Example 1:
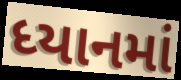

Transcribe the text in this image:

ધ્યાનમાં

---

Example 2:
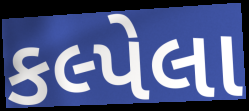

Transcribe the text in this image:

કલ્પેલા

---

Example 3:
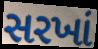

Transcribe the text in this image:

સરખાં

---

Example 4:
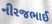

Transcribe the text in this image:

નીરજભાઈ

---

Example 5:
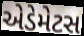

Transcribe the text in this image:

એડેમેટસ